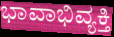
ಭಾವಾಭಿವ್ಯಕ್ತಿ